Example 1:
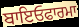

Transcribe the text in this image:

ਬਾਇਓਫਾਰਮਾ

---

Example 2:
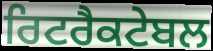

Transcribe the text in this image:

ਰਿਟਰੈਕਟੇਬਲ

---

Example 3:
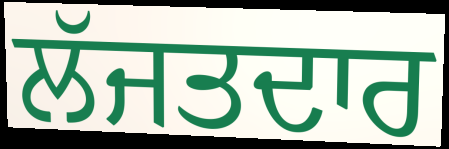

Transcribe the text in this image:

ਲੱਜਤਦਾਰ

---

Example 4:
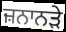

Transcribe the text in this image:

ਜ਼ਨਾਨੜੇ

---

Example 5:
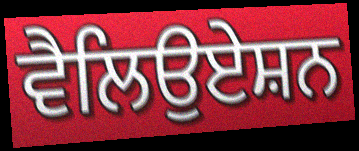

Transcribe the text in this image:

ਵੈਲਿਉਏਸ਼ਨ